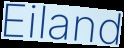
Eiland